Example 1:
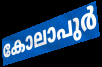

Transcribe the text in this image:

കോലാപുർ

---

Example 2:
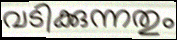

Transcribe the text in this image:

വടിക്കുന്നതും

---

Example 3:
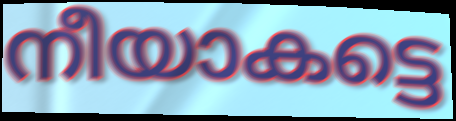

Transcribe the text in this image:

നീയാകട്ടെ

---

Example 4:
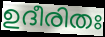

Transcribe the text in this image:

ഉദീരിതഃ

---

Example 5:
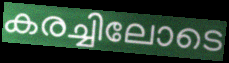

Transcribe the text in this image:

കരച്ചിലോടെ